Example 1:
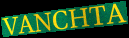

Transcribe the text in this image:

VANCHTA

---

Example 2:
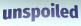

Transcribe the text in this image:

unspoiled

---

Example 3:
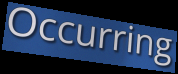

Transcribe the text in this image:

Occurring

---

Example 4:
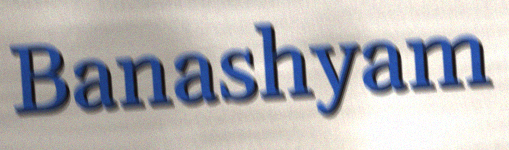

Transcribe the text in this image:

Banashyam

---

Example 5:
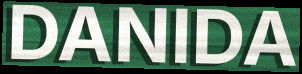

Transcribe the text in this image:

DANIDA